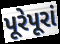
પૂરેપૂરાં